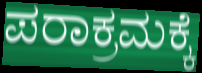
ಪರಾಕ್ರಮಕ್ಕೆ